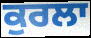
ਕੁਰਲਾ